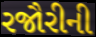
રજૌરીની